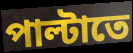
পাল্টাতে